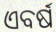
ଏବର୍ଷ